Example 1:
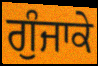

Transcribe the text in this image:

ਗੁੰਜਾਕੇ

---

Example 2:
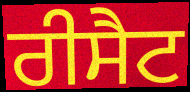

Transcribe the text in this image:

ਰੀਸੈਟ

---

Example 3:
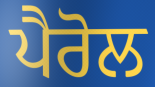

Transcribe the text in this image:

ਪੈਰੋਲ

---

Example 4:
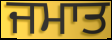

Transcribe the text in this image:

ਜਮਾਤ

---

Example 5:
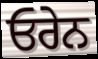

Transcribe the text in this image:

ਓਰੇਨ